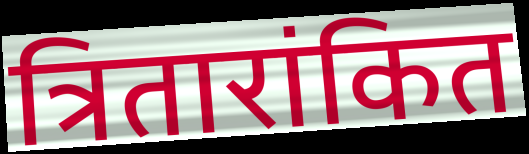
त्रितारांकित